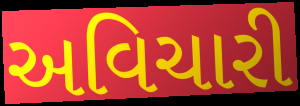
અવિચારી